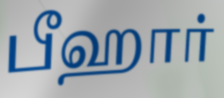
பீஹார்